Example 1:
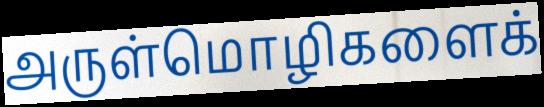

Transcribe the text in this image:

அருள்மொழிகளைக்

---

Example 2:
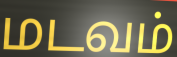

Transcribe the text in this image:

மடவம்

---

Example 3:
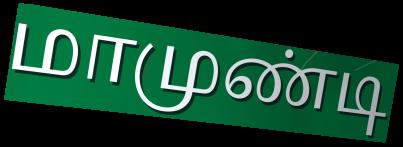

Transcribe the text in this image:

மாமுண்டி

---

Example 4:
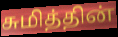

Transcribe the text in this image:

சுமித்தின்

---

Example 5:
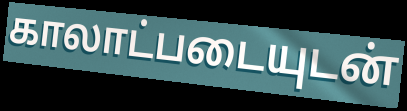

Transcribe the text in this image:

காலாட்படையுடன்